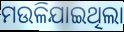
ମଉଳିଯାଇଥିଲା